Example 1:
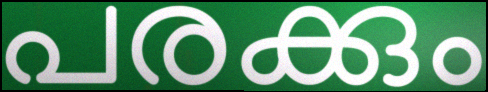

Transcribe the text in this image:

പരക്കും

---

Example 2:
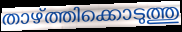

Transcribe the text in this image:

താഴ്ത്തിക്കൊടുത്തു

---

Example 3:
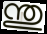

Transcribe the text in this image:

ന്തു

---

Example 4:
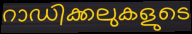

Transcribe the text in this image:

റാഡിക്കലുകളുടെ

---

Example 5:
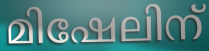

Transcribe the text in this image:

മിഷേലിന്